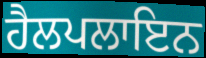
ਹੈਲਪਲਾਇਨ